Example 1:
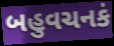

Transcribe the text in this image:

બહુવચનકં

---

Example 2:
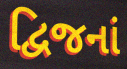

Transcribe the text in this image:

દ્વિજનાં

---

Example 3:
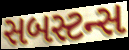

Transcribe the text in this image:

સબસ્ટન્સ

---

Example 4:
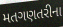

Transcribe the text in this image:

મતગણતરીના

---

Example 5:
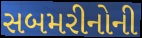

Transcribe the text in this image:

સબમરીનોની